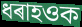
ধৰাহওক